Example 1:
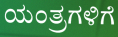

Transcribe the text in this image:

ಯಂತ್ರಗಳಿಗೆ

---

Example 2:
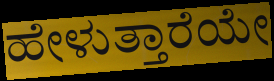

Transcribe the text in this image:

ಹೇಳುತ್ತಾರೆಯೇ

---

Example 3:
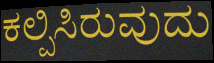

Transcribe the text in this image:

ಕಲ್ಪಿಸಿರುವುದು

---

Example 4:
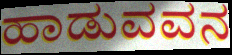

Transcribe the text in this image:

ಹಾಡುವವನ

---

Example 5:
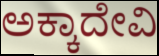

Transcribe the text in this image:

ಅಕ್ಕಾದೇವಿ